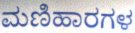
ಮಣಿಹಾರಗಳ